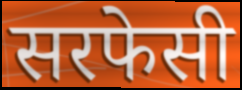
सरफेसी